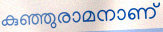
കുഞ്ഞുരാമനാണ്